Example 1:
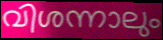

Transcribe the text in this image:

വിശന്നാലും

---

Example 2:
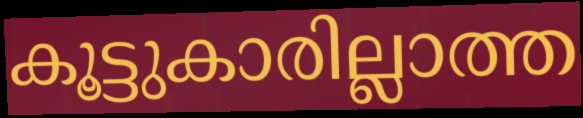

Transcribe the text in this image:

കൂട്ടുകാരില്ലാത്ത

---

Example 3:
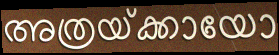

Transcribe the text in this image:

അത്രയ്‌ക്കായോ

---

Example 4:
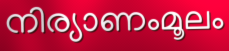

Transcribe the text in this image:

നിര്യാണംമൂലം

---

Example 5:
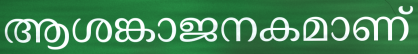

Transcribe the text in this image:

ആശങ്കാജനകമാണ്